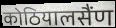
कोठियालसैंण